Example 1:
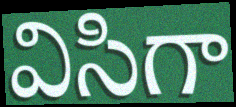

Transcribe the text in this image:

విసిగా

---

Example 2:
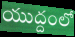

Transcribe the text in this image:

యుద్దంలో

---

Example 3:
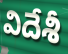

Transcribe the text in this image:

విదేశీ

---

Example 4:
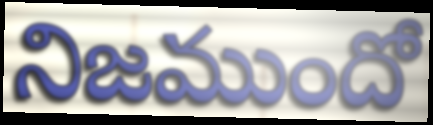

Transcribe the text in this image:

నిజముందో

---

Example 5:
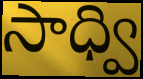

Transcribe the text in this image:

సాధ్వి